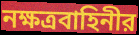
নক্ষত্রবাহিনীর